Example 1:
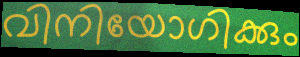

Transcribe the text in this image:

വിനിയോഗിക്കും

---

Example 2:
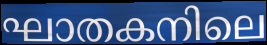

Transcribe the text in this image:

ഘാതകനിലെ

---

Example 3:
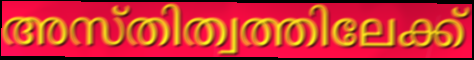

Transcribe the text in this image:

അസ്തിത്വത്തിലേക്ക്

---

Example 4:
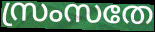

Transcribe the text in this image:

സ്രംസതേ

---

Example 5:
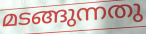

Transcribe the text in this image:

മടങ്ങുന്നതു